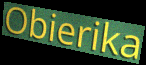
Obierika